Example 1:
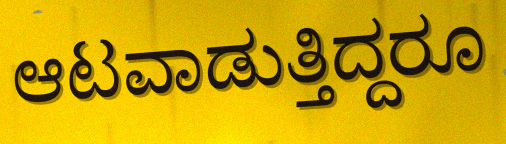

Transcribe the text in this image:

ಆಟವಾಡುತ್ತಿದ್ದರೂ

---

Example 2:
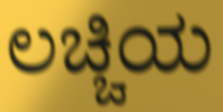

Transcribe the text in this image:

ಲಚ್ಚಿಯ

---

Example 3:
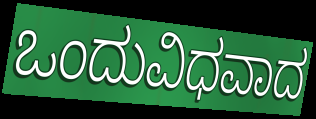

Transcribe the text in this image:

ಒಂದುವಿಧವಾದ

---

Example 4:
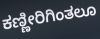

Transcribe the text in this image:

ಕಣ್ಣೀರಿಗಿಂತಲೂ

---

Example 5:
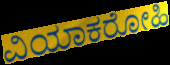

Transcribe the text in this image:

ವಿಯಾಕರೋಹಿ